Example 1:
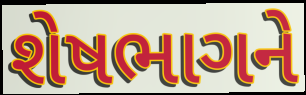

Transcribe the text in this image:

શેષભાગને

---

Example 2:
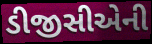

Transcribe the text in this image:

ડીજીસીએની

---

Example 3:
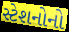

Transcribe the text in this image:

સ્ટેશનોનો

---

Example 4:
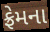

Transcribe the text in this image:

ફ્રેમના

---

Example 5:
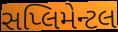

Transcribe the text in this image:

સપ્લિમેન્ટલ